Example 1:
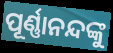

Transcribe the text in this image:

ପୂର୍ଣ୍ଣାନନ୍ଦଙ୍କୁ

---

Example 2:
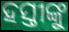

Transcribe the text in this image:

ହସ୍ତୀଙ୍କୁ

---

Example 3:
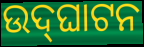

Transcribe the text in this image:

ଉଦ୍‍ଘାଟନ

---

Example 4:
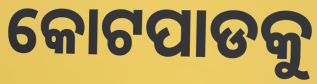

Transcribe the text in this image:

କୋଟପାଡକୁ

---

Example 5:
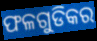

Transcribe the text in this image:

ଫଳଗୁଡିକର